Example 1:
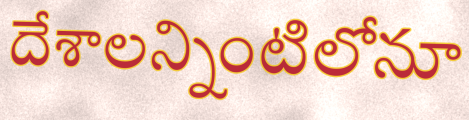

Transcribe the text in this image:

దేశాలన్నింటిలోనూ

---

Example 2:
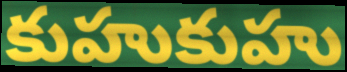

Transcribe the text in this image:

కుహుకుహు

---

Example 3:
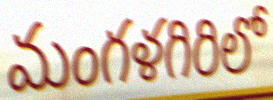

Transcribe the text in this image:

మంగళగిరిలో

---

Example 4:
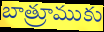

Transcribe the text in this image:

బాత్రూముకు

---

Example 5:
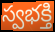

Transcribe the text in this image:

స్వభక్తి